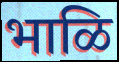
भाळि